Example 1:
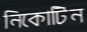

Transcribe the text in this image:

নিকোটিন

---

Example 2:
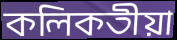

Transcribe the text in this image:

কলিকতীয়া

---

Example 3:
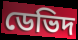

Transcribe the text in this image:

ডেভিদ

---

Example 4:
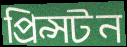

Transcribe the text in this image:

প্ৰিন্সটন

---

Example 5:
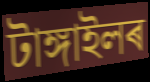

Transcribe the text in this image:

টাঙ্গাইলৰ